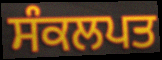
ਸੰਕਲਪਤ